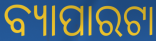
ବ୍ୟାପାରଟା